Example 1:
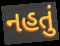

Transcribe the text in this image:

નહતું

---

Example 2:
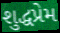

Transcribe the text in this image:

શુદ્ધપ્રેમ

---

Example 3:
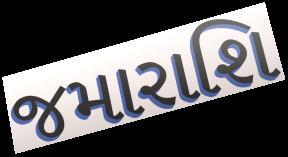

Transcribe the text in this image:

જમારાશિ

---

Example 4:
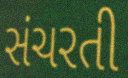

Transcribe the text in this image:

સંચરતી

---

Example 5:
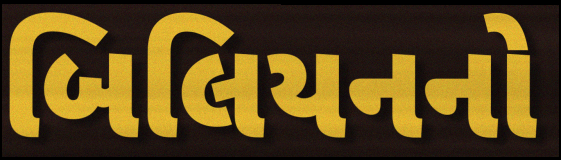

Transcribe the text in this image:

બિલિયનનો